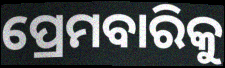
ପ୍ରେମବାରିକୁ